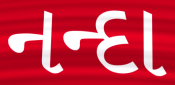
નન્દા